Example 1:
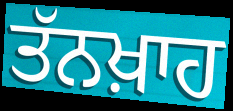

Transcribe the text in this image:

ਤੱਨਖ਼ਾਹ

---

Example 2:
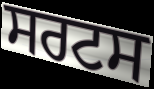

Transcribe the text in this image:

ਸਰਟਸ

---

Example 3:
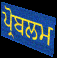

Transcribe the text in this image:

ਪ੍ਰੋਬਲਮ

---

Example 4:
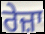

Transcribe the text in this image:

ਰੇਜ਼ਾ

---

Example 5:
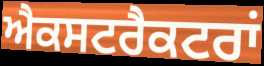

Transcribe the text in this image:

ਐਕਸਟਰੈਕਟਰਾਂ